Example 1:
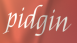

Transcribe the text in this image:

pidgin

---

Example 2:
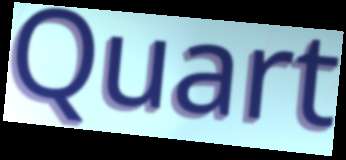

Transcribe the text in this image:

Quart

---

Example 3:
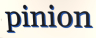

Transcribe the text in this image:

pinion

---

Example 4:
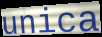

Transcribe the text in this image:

unica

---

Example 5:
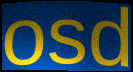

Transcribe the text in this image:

osd